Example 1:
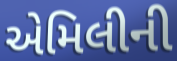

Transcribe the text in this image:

એમિલીની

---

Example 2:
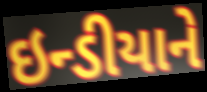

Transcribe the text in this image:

ઇન્ડીયાને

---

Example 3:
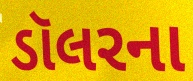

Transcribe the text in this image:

ડૉલરના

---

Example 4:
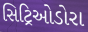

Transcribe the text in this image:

સિટ્રિઓડોરા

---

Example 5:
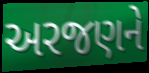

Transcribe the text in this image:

અરજણને